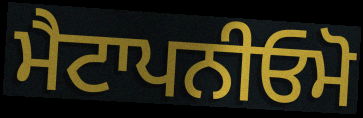
ਮੈਟਾਪਨੀਓਮੋ